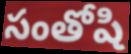
సంతోషి